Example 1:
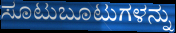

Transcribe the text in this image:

ಸೂಟುಬೂಟುಗಳನ್ನು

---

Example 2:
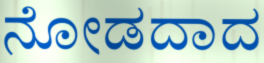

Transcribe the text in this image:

ನೋಡದಾದ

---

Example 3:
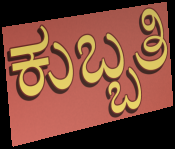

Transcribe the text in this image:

ಕುಬ್ಬತಿ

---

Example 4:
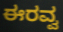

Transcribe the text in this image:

ಈರವ್ವ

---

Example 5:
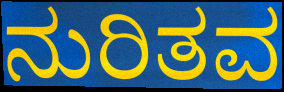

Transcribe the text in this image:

ನುರಿತವ